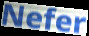
Nefer